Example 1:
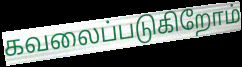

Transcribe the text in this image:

கவலைப்படுகிறோம்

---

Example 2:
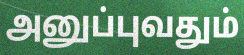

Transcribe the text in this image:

அனுப்புவதும்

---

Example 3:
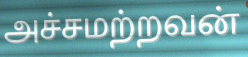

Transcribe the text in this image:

அச்சமற்றவன்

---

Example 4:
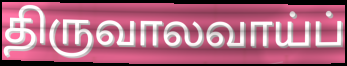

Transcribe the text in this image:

திருவாலவாய்ப்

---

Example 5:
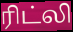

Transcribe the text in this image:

ரிட்லி